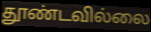
தூண்டவில்லை